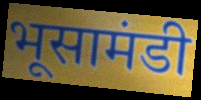
भूसामंडी